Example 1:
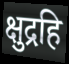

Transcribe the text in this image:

क्षुद्रहि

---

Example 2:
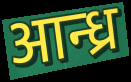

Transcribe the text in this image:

आन्ध्र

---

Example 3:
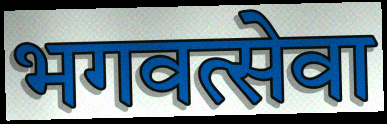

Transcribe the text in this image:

भगवत्सेवा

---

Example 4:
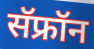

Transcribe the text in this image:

सॅफ्रॉन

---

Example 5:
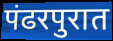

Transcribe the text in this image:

पंढरपुरात